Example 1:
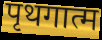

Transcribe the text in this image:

पृथगात्म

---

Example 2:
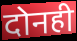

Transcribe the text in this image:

दोनही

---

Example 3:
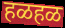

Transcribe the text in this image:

हळहळ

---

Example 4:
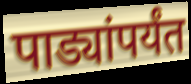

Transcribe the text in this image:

पाड्यांपर्यंत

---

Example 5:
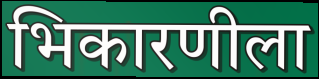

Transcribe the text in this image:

भिकारणीला